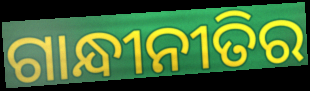
ଗାନ୍ଧୀନୀତିର